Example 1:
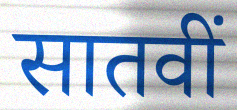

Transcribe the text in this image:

सातवीं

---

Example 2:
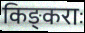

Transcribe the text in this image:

किङ्कराः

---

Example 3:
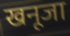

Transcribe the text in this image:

खनूजा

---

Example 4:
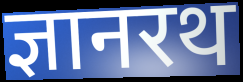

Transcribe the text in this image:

ज्ञानरथ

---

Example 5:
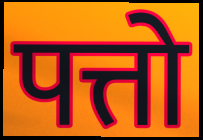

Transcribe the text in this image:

पत्तो